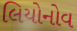
લિયોનોવ